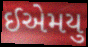
ઈએમયુ